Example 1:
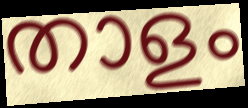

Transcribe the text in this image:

താളം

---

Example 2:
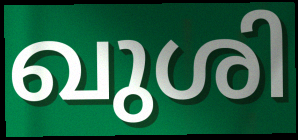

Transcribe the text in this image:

ഖുശി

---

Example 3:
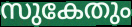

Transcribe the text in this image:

സുകേതും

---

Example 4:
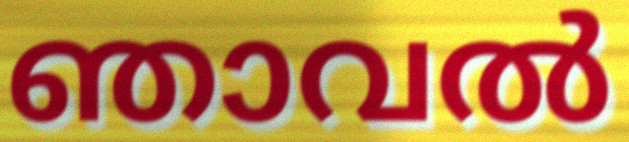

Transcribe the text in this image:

ഞാവൽ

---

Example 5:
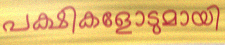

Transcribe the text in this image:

പക്ഷികളോടുമായി